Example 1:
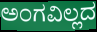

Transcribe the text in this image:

ಅಂಗವಿಲ್ಲದ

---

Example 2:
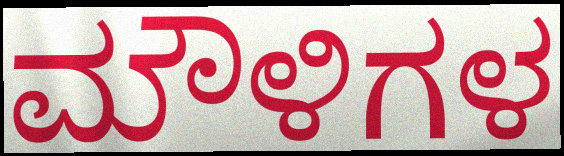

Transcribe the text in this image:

ಮೌಳಿಗಳ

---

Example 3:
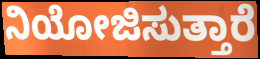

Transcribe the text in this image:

ನಿಯೋಜಿಸುತ್ತಾರೆ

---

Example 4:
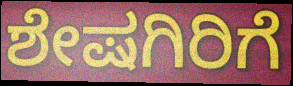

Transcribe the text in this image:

ಶೇಷಗಿರಿಗೆ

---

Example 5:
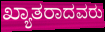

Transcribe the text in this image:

ಖ್ಯಾತರಾದವರು